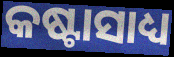
କଷ୍ଟାସାଧ୍ୟ